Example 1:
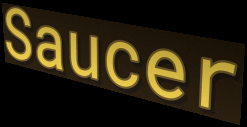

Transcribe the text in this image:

Saucer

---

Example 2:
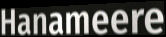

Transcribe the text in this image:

Hanameere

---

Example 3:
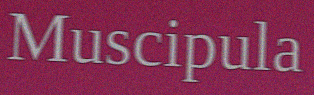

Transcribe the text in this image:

Muscipula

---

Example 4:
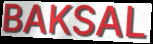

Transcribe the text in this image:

BAKSAL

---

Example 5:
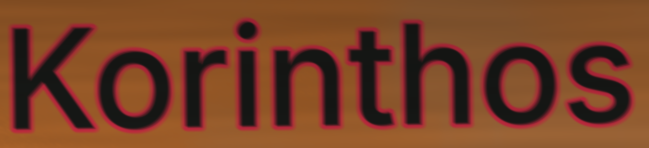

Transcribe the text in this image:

Korinthos